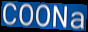
COONa